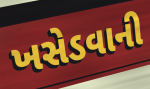
ખસેડવાની